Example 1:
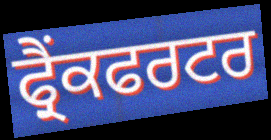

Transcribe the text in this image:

ਫ੍ਰੈਂਕਫਰਟਰ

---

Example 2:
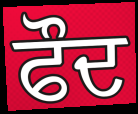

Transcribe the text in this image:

ਫੌਦ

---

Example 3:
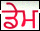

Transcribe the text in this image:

ਡੇਮ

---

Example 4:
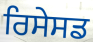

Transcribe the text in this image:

ਰਿਸੇਸਡ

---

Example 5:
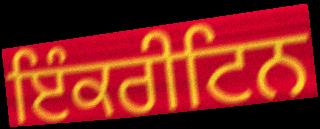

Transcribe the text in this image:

ਇੰਕਰੀਟਿਨ